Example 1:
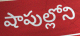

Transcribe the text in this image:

షాపుల్లోని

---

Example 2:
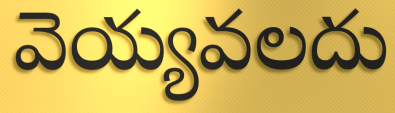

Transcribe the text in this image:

వెయ్యవలదు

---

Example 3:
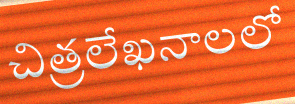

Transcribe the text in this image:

చిత్రలేఖనాలలో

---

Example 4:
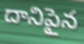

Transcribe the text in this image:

దానిపైన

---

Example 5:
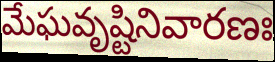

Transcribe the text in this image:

మేఘవృష్టినివారణః